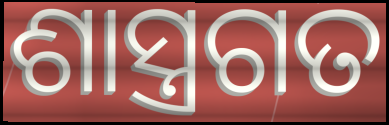
ଶାସ୍ତ୍ରଗତ